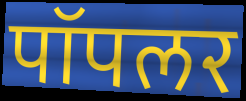
पॉपलर